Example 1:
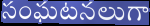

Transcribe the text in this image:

సంఘటనలుగా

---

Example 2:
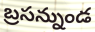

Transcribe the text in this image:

బ్రసన్నుండ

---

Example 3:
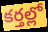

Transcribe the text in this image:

కర్తల్లో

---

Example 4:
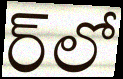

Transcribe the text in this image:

ర్‌లో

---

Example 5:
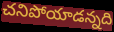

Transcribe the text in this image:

చనిపోయాడన్నది